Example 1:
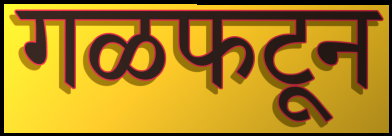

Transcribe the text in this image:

गळफटून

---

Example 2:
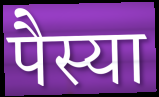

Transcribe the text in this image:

पैस्या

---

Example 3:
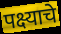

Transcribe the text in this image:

पक्ष्याचे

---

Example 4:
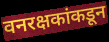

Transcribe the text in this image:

वनरक्षकांकडून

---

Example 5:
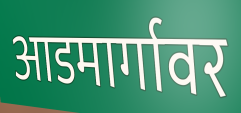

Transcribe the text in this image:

आडमार्गावर